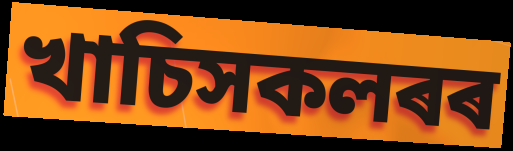
খাচিসকলৰৰ